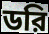
ডরি